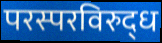
परस्परविरुद्ध